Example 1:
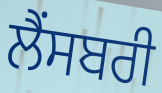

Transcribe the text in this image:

ਲੈਂਸਬਰੀ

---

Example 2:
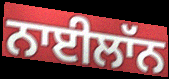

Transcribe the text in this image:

ਨਾਈਲਾੱਨ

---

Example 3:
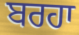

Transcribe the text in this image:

ਬਰਹਾ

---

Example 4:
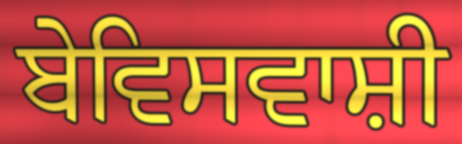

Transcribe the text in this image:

ਬੇਵਿਸਵਾਸ਼ੀ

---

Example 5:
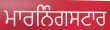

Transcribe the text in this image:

ਮਾਰਨਿੰਗਸਟਾਰ